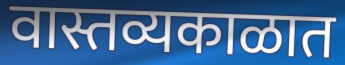
वास्तव्यकाळात